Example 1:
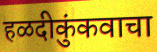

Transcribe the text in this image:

हळदीकुंकवाचा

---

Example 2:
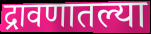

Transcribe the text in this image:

द्रावणातल्या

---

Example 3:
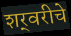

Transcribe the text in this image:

शर्वरीचे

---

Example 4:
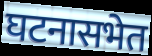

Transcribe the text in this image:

घटनासभेत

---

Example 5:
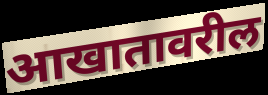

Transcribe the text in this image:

आखातावरील